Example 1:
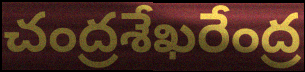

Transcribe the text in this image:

చంద్రశేఖరేంద్ర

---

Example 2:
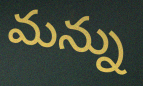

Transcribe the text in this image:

మన్ను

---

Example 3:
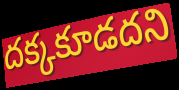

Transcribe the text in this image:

దక్కకూడదని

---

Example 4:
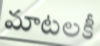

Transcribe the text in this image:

మాటలకీ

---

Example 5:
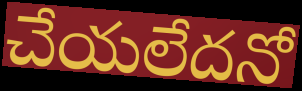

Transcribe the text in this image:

చేయలేదనో